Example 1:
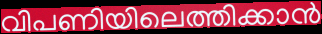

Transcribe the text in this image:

വിപണിയിലെത്തിക്കാൻ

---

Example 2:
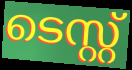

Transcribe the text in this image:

ടെസ്റ്റ്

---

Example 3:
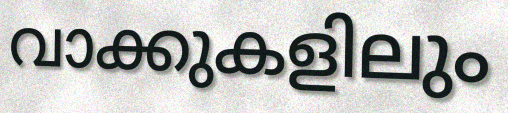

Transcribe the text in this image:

വാക്കുകളിലും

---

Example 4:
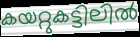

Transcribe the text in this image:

കയറ്റുകട്ടിലിൽ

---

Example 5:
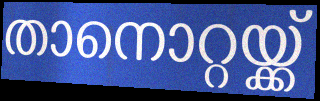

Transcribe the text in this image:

താനൊറ്റയ്ക്ക്